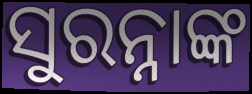
ସୁରନ୍ନାଙ୍କ